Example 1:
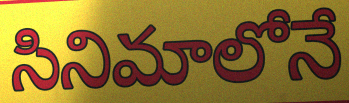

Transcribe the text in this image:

సినిమాలోనే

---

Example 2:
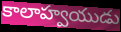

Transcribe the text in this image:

కాలాహ్వయుడు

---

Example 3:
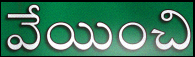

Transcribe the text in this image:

వేయించి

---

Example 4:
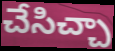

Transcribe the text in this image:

చేసిచ్చా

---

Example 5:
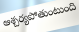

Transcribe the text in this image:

ఆశ్చర్యపోతుంటుంది